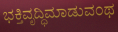
ಭಕ್ತಿವೃದ್ಧಿಮಾಡುವಂಥ